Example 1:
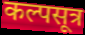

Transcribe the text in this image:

कल्पसूत्र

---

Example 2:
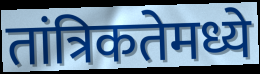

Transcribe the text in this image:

तांत्रिकतेमध्ये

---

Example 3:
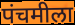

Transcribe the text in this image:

पंचमीला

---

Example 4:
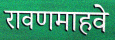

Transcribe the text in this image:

रावणमाहवे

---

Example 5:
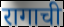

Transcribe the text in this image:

रागाची